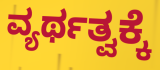
ವ್ಯರ್ಥತ್ವಕ್ಕೆ